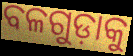
ବଳଗୁଡ଼ାକୁ